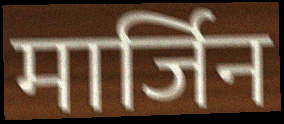
मार्जिन